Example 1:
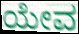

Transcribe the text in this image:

ಯೇವ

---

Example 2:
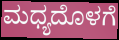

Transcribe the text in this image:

ಮಧ್ಯದೊಳಗೆ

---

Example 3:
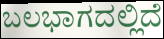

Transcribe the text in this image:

ಬಲಭಾಗದಲ್ಲಿದೆ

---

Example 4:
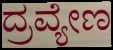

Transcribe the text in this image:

ದ್ರವ್ಯೇಣ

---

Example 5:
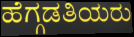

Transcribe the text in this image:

ಹೆಗ್ಗಡತಿಯರು